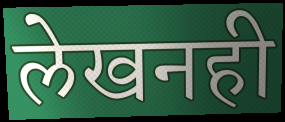
लेखनही